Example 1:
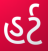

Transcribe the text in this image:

હર્ટ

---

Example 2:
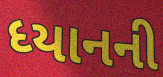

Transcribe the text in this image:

ધ્યાનની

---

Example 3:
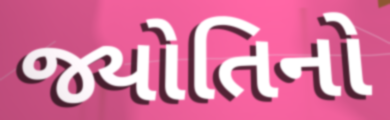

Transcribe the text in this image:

જ્યોતિનો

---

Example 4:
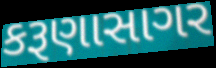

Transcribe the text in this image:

કરૂણાસાગર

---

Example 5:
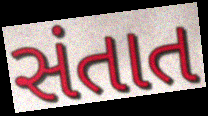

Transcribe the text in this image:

સંતાત